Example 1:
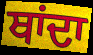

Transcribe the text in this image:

ਥਾਂਦਾ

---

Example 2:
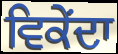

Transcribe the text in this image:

ਵਿਕੇਂਦਾ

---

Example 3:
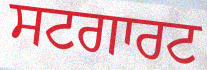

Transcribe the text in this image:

ਸਟਗਾਰਟ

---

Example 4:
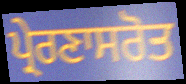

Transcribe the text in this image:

ਪ੍ਰੇਰਣਾਸਰੋਤ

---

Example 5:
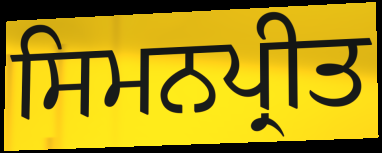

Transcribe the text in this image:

ਸਿਮਨਪ੍ਰੀਤ